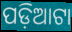
ପଡ଼ିଆଟା